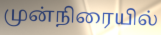
முன்நிரையில்